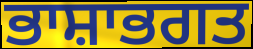
ਭਾਸ਼ਾਭਗਤ